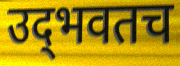
उद्‌भवतच